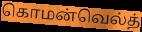
கொமன்வெல்த்